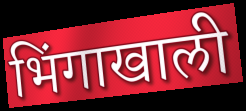
भिंगाखाली